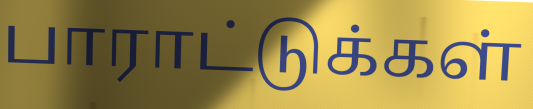
பாராட்டுக்கள்